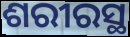
ଶରୀରସ୍ଥ